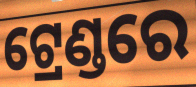
ଟ୍ରେଣ୍ଡରେ